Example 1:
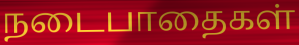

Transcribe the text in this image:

நடைபாதைகள்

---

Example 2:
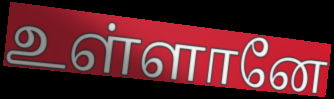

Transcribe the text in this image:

உள்ளானே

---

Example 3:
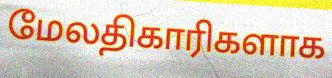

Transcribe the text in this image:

மேலதிகாரிகளாக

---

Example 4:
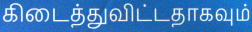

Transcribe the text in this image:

கிடைத்துவிட்டதாகவும்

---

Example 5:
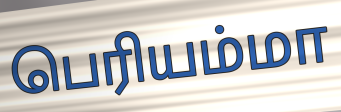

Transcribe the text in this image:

பெரியம்மா